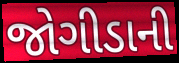
જોગીડાની